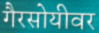
गैरसोयीवर